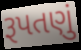
રૂપતણું